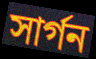
সার্গন